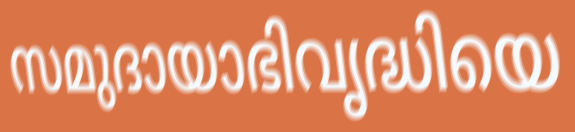
സമുദായാഭിവൃദ്ധിയെ